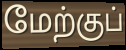
மேற்குப்